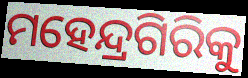
ମହେନ୍ଦ୍ରଗିରିକୁ